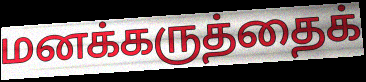
மனக்கருத்தைக்